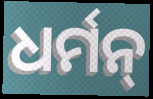
ଧର୍ମନ୍